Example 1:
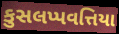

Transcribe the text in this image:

કુસલપ્પવત્તિયા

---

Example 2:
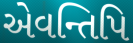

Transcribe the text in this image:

એવન્તિપિ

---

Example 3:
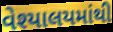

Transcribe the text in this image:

વેશ્યાલયમાંથી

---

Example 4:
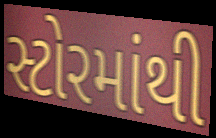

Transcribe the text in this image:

સ્ટોરમાંથી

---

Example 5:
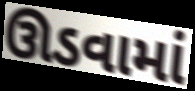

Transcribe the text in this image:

ઊડવામાં